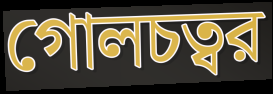
গোলচত্বর